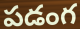
పడంగ